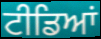
ਟੀਡਿਆਂ